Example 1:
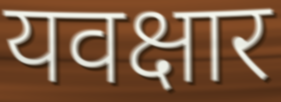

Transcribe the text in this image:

यवक्षार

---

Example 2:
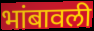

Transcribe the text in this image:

भांबावली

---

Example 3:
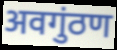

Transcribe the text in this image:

अवगुंठण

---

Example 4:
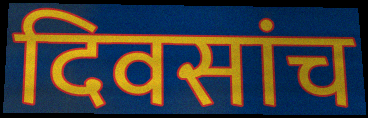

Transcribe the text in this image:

दिवसांच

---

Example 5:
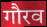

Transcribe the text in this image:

गौरव